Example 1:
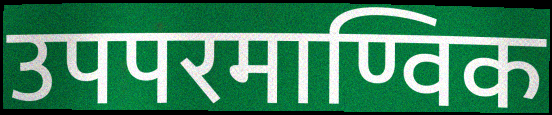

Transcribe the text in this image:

उपपरमाण्विक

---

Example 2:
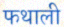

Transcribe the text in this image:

फथाली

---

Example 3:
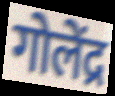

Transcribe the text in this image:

गोलेंद्र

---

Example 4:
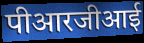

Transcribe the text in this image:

पीआरजीआई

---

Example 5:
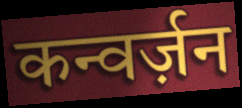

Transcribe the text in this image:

कन्वर्ज़न